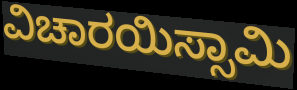
ವಿಚಾರಯಿಸ್ಸಾಮಿ